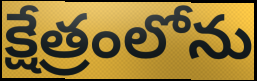
క్షేత్రంలోను